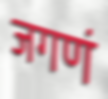
जगणं